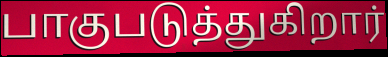
பாகுபடுத்துகிறார்